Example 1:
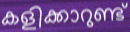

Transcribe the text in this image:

കളിക്കാറുണ്ട്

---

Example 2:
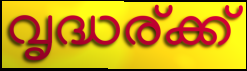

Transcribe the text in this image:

വൃദ്ധര്ക്ക്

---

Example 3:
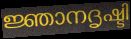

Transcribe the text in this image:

ജ്ഞാനദൃഷ്ടി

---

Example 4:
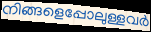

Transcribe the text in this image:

നിങ്ങളെപ്പോലുള്ളവർ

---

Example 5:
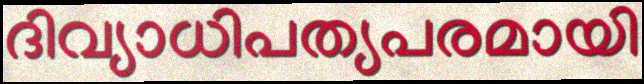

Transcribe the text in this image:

ദിവ്യാധിപത്യപരമായി